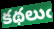
కథలుఁ